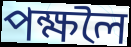
পক্ষলৈ